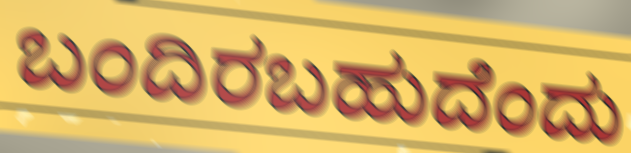
ಬಂದಿರಬಹುದೆಂದು